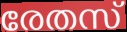
രേതസ്